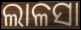
ଲାଳସା